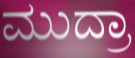
ಮುದ್ರಾ